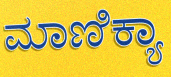
ಮಾಣಿಕ್ಯಾ